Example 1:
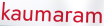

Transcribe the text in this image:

kaumaram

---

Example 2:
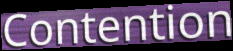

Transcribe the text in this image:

Contention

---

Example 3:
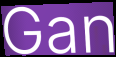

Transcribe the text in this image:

Gan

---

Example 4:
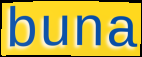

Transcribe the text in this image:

buna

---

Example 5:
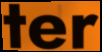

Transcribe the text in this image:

ter